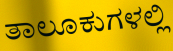
ತಾಲೂಕುಗಳಲ್ಲಿ